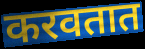
करवतात